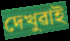
দেখুৱাই